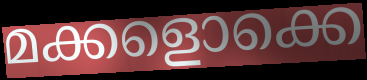
മക്കളൊക്കെ